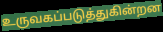
உருவகப்படுத்துகின்றன